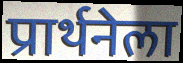
प्रार्थनेला